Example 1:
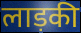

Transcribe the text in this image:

लाड़की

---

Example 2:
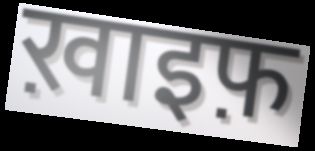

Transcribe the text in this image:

ख़ाइफ़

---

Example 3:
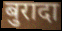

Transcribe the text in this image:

बुरादा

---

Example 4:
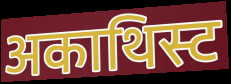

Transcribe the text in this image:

अकाथिस्ट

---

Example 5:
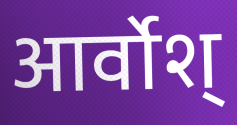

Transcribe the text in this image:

आर्वोश्